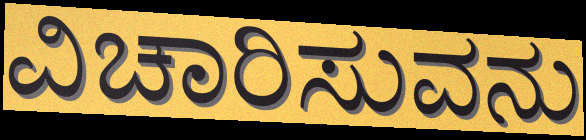
ವಿಚಾರಿಸುವನು